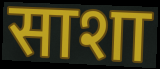
साशा